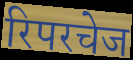
रिपरचेज